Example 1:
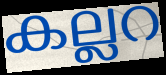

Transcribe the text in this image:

കല്ലറ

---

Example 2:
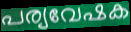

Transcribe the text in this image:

പര്യവേഷക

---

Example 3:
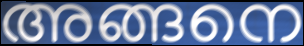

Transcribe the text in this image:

അങ്ങനെ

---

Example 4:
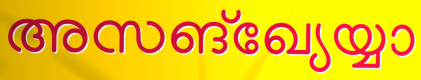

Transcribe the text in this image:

അസങ്ഖ്യേയ്യാ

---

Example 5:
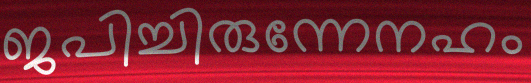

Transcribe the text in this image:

ജപിച്ചിരുന്നേനഹം